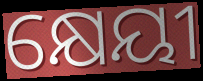
କ୍ଷେୟୀ